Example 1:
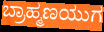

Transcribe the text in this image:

ಬ್ರಾಹ್ಮಣಯುಗ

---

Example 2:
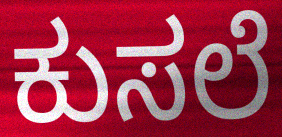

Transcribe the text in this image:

ಕುಸಲೆ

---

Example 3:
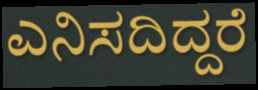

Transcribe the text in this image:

ಎನಿಸದಿದ್ದರೆ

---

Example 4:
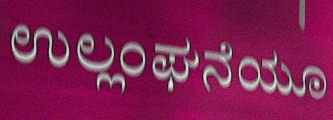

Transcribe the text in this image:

ಉಲ್ಲಂಘನೆಯೂ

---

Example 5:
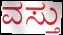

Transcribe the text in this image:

ವಸ್ತು